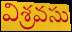
విశ్రవసు